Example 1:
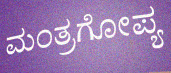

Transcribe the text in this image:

ಮಂತ್ರಗೋಪ್ಯ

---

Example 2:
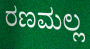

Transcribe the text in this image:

ರಣಮಲ್ಲ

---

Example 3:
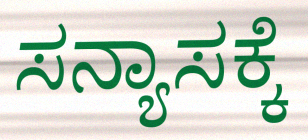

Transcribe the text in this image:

ಸನ್ಯಾಸಕ್ಕೆ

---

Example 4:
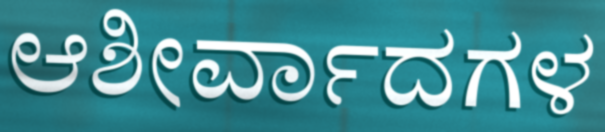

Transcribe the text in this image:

ಆಶೀರ್ವಾದಗಳ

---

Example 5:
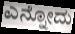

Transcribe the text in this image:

ಎನ್ನೋದು